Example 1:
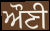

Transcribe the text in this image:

ਔਣੀ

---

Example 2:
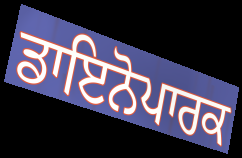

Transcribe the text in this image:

ਡਾਇਨੋਪਾਰਕ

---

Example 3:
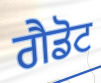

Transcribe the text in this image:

ਗੈਡੋਟ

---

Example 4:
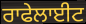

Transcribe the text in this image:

ਰਾਫੇਲਾਈਟ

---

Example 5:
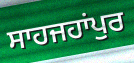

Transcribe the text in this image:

ਸਾਹਜਹਾਂਪੁਰ